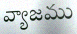
వ్యాజము